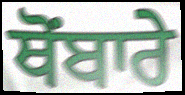
ਥੋਂਬਾਰੇ